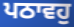
ਪਠਾਵਹੁ